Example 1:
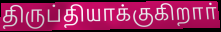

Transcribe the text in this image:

திருப்தியாக்குகிறார்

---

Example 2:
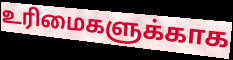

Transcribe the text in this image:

உரிமைகளுக்காக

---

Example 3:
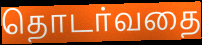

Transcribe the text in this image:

தொடர்வதை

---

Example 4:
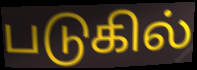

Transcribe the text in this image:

படுகில்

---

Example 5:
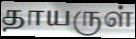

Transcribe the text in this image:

தாயருள்